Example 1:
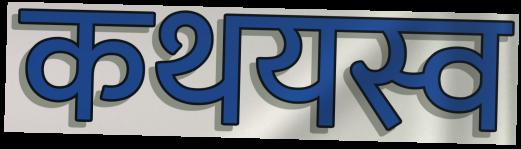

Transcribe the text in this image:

कथयस्व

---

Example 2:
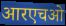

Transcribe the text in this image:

आरएचओ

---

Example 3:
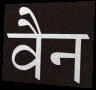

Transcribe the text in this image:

वैन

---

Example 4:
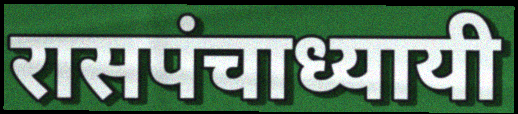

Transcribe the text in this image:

रासपंचाध्यायी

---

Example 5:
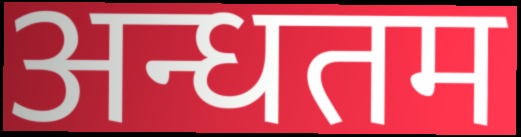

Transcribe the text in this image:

अन्धतम